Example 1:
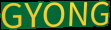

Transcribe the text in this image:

GYONG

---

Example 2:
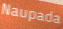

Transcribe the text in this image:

Naupada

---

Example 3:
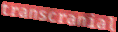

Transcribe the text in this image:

transcranial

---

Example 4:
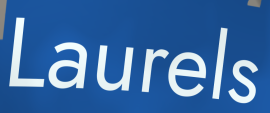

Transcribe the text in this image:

Laurels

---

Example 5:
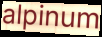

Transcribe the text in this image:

alpinum